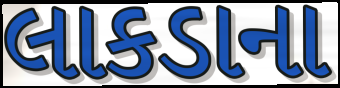
લાકડાના